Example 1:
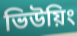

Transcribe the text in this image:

ভিউয়িং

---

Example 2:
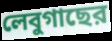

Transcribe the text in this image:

লেবুগাছের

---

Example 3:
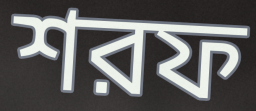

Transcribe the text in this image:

শরফ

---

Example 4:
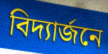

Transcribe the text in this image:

বিদ্যার্জনে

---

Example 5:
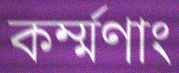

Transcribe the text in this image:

কর্ম্মণাং